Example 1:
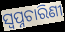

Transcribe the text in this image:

ସ୍ୱପ୍ନଚାରିଣୀ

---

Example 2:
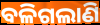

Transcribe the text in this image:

ବଳିଗଲାଣି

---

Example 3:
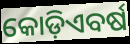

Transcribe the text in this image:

କୋଡ଼ିଏବର୍ଷ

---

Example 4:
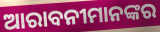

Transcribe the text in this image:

ଆରାବନୀମାନଙ୍କର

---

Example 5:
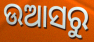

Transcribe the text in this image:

ଉଆସରୁ